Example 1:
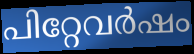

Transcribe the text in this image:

പിറ്റേവർഷം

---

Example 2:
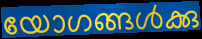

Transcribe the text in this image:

യോഗങ്ങൾക്കു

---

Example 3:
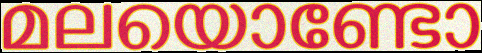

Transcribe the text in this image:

മലയൊണ്ടോ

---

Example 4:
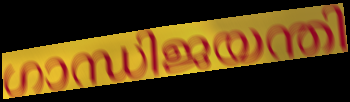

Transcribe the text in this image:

ഗാന്ധിജയന്തി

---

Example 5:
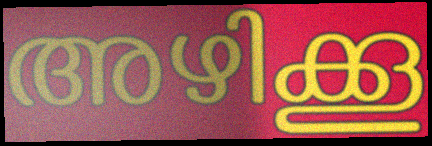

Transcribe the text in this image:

അഴിക്കൂ